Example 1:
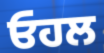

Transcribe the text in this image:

ਓਹਲ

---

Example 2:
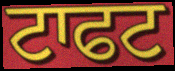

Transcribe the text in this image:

ਟਾਫਟ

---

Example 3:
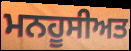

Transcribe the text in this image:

ਮਨਹੂਸੀਅਤ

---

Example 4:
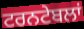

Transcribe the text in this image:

ਟਰਨਟੇਬਲਾਂ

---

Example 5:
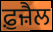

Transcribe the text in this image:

ਫ਼ੁਜ਼ੈਲ